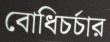
বোধিচর্চার